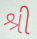
શ્રી